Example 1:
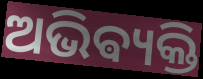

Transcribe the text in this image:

ଅଭିଵ୍ୟକ୍ତି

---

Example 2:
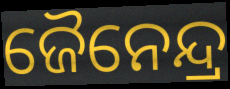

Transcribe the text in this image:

ଜୈନେନ୍ଦ୍ର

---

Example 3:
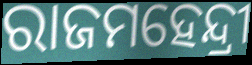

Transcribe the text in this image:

ରାଜମହେନ୍ଦ୍ରୀ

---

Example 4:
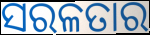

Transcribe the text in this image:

ସରଳତାର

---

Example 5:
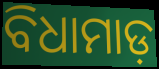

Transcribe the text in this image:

ବିଧାମାଡ଼